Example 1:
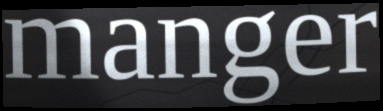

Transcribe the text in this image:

manger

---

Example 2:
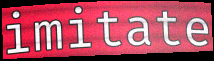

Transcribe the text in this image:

imitate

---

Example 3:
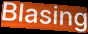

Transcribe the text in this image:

Blasing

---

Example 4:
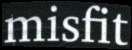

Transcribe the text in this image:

misfit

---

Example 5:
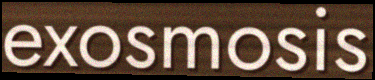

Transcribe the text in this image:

exosmosis